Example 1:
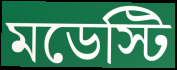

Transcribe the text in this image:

মডেস্টি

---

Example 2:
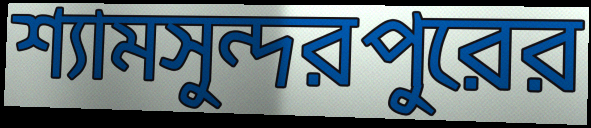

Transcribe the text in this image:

শ্যামসুন্দরপুরের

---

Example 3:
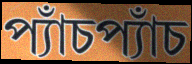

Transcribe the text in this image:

প্যাঁচপ্যাঁচ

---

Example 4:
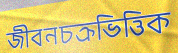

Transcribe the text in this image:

জীবনচক্রভিত্তিক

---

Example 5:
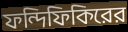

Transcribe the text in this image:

ফন্দিফিকিরের